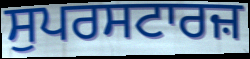
ਸੁਪਰਸਟਾਰਜ਼